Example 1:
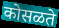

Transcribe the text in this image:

कोसळते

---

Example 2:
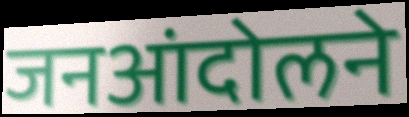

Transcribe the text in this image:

जनआंदोलने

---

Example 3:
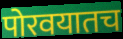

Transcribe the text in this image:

पोरवयातच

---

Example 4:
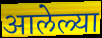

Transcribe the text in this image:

आलेल्या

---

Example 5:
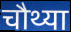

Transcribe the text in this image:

चौथ्या